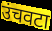
उंचवटा